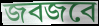
জবজবে